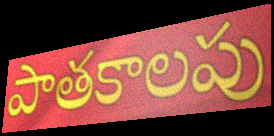
పాతకాలపు